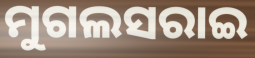
ମୁଗଲସରାଇ